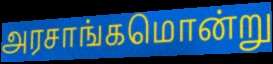
அரசாங்கமொன்று